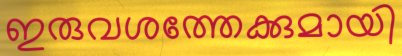
ഇരുവശത്തേക്കുമായി